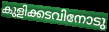
കുളിക്കടവിനോടു